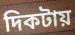
দিকটায়